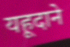
यहूदाने